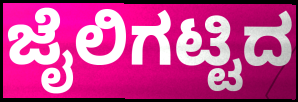
ಜೈಲಿಗಟ್ಟಿದ